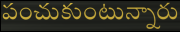
పంచుకుంటున్నారు